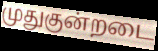
முதுகுன்றடை